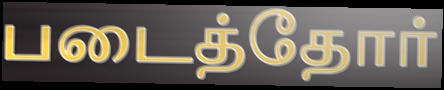
படைத்தோர்